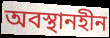
অবস্থানহীন